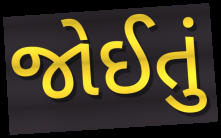
જોઈતું